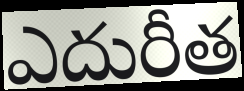
ఎదురీత